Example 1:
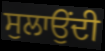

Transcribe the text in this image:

ਸੁਲਾਉਂਦੀ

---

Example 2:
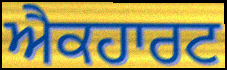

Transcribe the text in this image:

ਐਕਹਾਰਟ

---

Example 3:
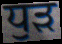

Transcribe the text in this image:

ਧੁੜ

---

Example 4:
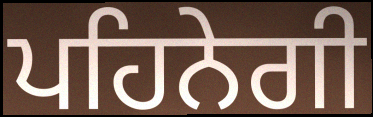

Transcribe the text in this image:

ਪਹਿਨੇਗੀ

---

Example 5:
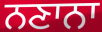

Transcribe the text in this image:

ਨਣਾਨਾ